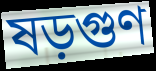
ষড়গুণ